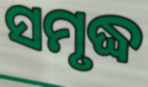
ସମୃଦ୍ଧ